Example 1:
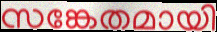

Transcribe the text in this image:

സങ്കേതമായി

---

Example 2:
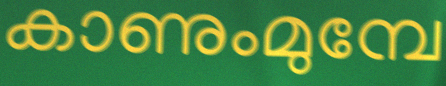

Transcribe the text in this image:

കാണുംമുമ്പേ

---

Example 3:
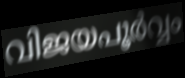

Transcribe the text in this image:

വിജയപൂർവ്വം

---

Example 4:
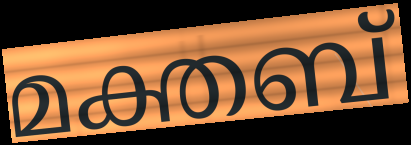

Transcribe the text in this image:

മക്തബ്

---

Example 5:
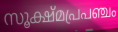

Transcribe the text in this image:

സൂക്ഷ്മപ്രപഞ്ചം